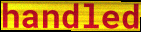
handled